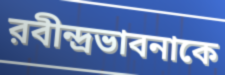
রবীন্দ্রভাবনাকে